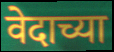
वेदाच्या